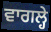
ਵਾਗਲ੍ਹੇ